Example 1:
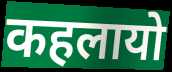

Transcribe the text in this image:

कहलायो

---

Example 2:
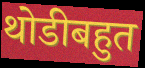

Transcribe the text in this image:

थोडीबहुत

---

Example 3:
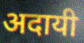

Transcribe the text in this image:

अदायी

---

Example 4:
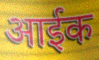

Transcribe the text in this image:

आईक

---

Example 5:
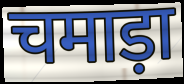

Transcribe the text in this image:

चमाड़ा